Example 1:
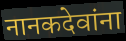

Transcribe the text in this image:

नानकदेवांना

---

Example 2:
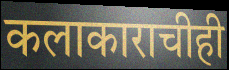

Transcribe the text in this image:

कलाकाराचीही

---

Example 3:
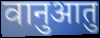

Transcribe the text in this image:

वानुआतु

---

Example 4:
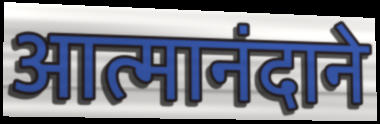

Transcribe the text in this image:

आत्मानंदाने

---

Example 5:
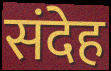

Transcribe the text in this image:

संदेह